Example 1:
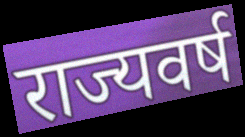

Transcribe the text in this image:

राज्यवर्ष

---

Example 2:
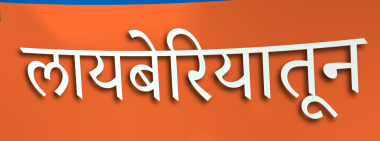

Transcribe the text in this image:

लायबेरियातून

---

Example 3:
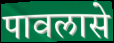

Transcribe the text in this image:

पावलासे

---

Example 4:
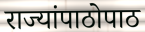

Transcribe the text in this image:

राज्यांपाठोपाठ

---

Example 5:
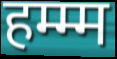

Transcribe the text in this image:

हम्म्म